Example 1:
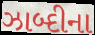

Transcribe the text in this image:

ઝાબ્દીના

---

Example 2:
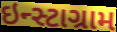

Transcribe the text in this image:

ઇન્સ્ટાગ્રામ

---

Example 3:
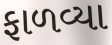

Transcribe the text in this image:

ફાળવ્યા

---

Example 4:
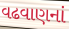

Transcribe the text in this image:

વઢવાણનાં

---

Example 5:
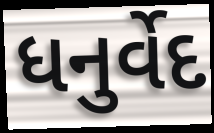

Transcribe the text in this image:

ધનુર્વેદ